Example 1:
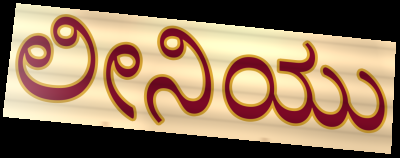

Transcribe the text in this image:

ಲೀನಿಯು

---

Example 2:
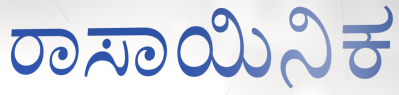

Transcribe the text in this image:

ರಾಸಾಯಿನಿಕ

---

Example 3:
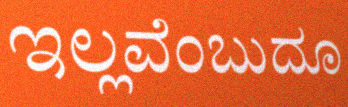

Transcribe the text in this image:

ಇಲ್ಲವೆಂಬುದೂ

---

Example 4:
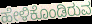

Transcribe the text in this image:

ಹೇಳಿಕೊಂಡಿರುವ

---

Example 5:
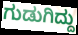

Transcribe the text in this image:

ಗುಡುಗಿದ್ದು